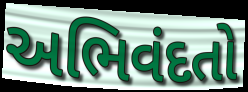
અભિવંદતો